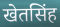
खेतसिंह